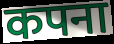
कपना